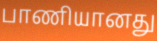
பாணியானது